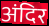
अंदिर